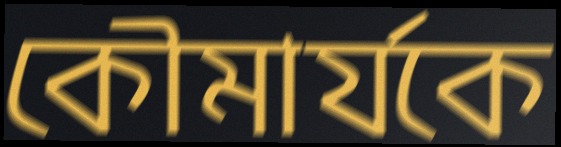
কৌমার্যকে